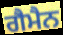
ਗੈਮੈਨ